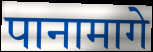
पानामागे